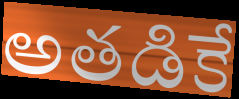
అతడికే